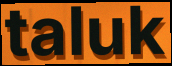
taluk